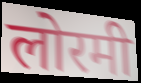
लोरमी